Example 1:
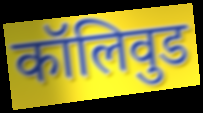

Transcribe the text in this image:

कॉलिवुड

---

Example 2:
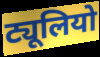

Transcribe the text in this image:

ट्यूलियो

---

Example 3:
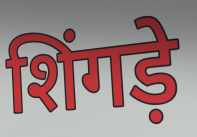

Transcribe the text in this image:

शिंगड़े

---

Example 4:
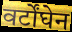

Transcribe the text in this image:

वर्टोंघेन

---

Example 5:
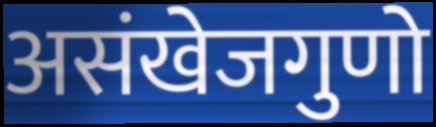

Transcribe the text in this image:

असंखेजगुणो